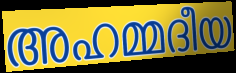
അഹമ്മദീയ